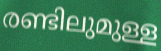
രണ്ടിലുമുള്ള